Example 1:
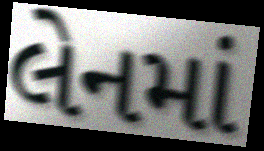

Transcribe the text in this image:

લેનમાં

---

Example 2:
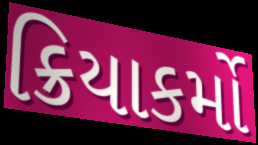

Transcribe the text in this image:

ક્રિયાકર્મો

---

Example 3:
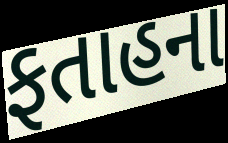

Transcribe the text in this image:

ફતાહના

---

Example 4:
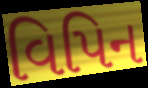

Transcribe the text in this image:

વિપિન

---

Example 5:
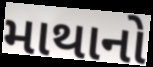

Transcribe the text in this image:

માથાનો